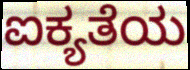
ಐಕ್ಯತೆಯ